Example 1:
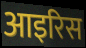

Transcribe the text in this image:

आइरिस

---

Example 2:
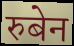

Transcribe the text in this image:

रुबेन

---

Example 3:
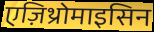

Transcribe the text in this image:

एज़िथ्रोमाइसिन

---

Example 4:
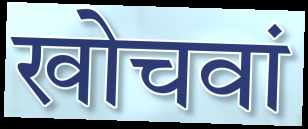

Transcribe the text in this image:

खोचवां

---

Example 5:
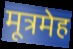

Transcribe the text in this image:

मूत्रमेह